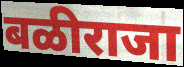
बळीराजा